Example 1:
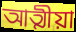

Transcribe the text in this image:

আত্মীয়া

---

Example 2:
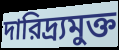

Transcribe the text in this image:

দারিদ্র্যমুক্ত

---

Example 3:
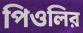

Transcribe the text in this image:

পিওলির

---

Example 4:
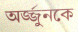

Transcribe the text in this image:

অর্জ্জুনকে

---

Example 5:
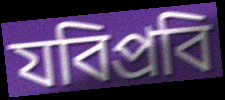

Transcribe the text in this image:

যবিপ্রবি